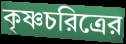
কৃষ্ণচরিত্রের